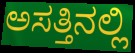
ಅಸತ್ತಿನಲ್ಲಿ